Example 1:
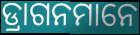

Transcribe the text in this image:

ଡ୍ରାଗନମାନେ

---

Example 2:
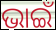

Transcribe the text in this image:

ଭାଇଁ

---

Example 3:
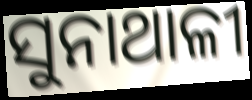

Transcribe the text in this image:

ସୁନାଥାଳୀ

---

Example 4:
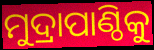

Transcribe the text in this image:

ମୁଦ୍ରାପାଣ୍ଠିକୁ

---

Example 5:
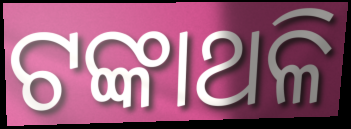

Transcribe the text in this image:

ଟଙ୍କାଥଳି